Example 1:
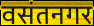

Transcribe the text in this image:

वसंतनगर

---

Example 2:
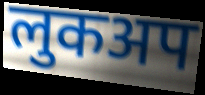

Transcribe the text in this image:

लुकअप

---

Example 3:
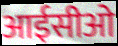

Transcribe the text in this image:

आईसीओ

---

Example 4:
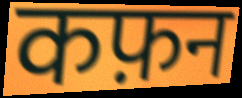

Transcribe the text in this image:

कफ़न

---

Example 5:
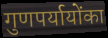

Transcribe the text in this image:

गुणपर्यायोंका